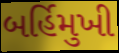
બર્હિમુખી